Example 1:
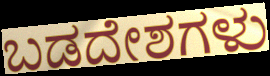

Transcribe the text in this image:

ಬಡದೇಶಗಳು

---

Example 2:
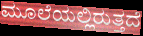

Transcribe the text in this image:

ಮೂಲೆಯಲ್ಲಿರುತ್ತದೆ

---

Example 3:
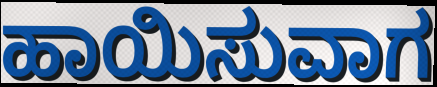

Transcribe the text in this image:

ಹಾಯಿಸುವಾಗ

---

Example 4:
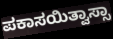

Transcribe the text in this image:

ಪಕಾಸಯಿತ್ವಾಸ್ಸಾ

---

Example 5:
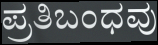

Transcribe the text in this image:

ಪ್ರತಿಬಂಧವು